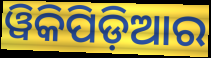
ୱିକିପିଡ଼ିଆର